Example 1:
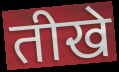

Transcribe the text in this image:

तीखे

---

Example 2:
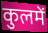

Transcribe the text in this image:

कुलमें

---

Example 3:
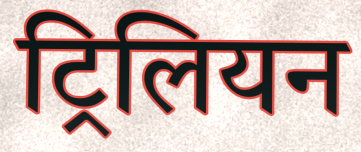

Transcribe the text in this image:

ट्रिलियन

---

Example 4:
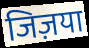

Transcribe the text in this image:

जिज़या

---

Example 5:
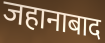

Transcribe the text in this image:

जहानाबाद